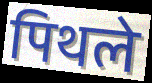
पिथले